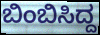
ಬಿಂಬಿಸಿದ್ದ